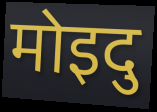
मोइदु